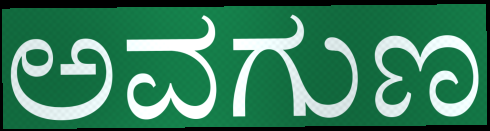
ಅವಗುಣ